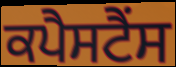
ਕਪੈਸਟੈਂਸ